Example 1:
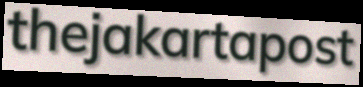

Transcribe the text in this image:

thejakartapost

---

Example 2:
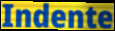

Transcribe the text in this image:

Indente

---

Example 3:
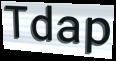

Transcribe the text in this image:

Tdap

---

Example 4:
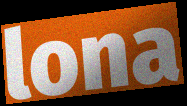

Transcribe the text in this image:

lona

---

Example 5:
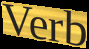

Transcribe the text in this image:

Verb